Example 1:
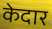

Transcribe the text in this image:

केदार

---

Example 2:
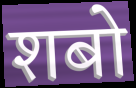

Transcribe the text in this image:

शबो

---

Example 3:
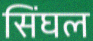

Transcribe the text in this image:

सिंघल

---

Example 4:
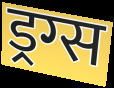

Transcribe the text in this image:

ड्रग्‍स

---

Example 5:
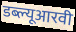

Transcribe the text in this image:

डब्ल्यूआरवी